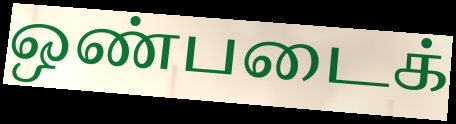
ஒண்படைக்